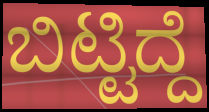
ಬಿಟ್ಟಿದ್ದೆ